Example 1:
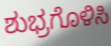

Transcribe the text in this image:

ಶುಭ್ರಗೊಳಿಸಿ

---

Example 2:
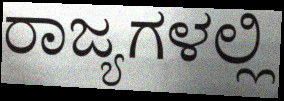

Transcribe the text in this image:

ರಾಜ್ಯಗಳಲ್ಲಿ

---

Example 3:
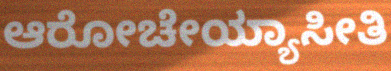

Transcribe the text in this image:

ಆರೋಚೇಯ್ಯಾಸೀತಿ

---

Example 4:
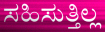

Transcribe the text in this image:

ಸಹಿಸುತ್ತಿಲ್ಲ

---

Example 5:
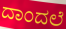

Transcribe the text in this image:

ದಾಂದಲೆ